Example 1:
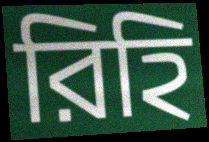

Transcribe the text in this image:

রিহি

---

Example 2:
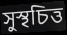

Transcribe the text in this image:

সুস্থচিত্ত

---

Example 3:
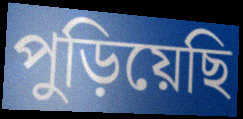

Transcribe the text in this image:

পুড়িয়েছি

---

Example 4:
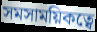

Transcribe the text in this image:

সমসাময়িকত্বে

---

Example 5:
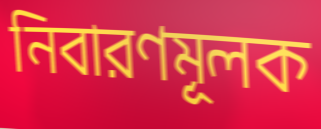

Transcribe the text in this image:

নিবারণমূলক